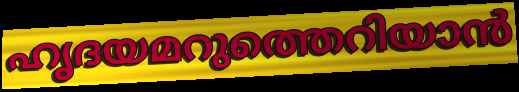
ഹൃദയമറുത്തെറിയാൻ